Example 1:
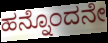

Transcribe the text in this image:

ಹನ್ನೊಂದನೇ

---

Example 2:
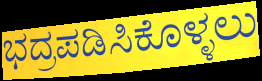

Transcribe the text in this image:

ಭದ್ರಪಡಿಸಿಕೊಳ್ಳಲು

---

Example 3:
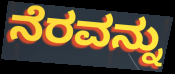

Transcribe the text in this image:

ನೆರವನ್ನು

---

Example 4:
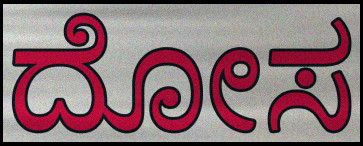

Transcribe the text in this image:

ದೋಸ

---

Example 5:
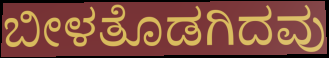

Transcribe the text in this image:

ಬೀಳತೊಡಗಿದವು